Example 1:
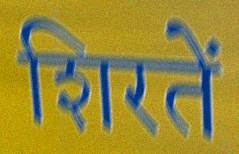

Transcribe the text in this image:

शिरतें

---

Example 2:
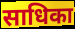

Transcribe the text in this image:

साधिका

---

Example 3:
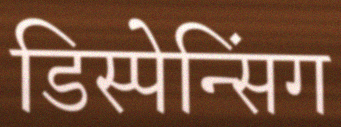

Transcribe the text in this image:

डिस्पेन्सिंग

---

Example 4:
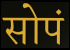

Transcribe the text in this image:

सोपं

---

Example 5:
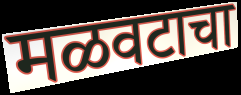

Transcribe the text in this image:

मळवटाचा